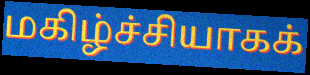
மகிழ்ச்சியாகக்